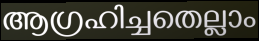
ആഗ്രഹിച്ചതെല്ലാം